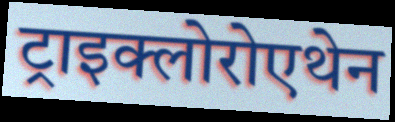
ट्राइक्लोरोएथेन